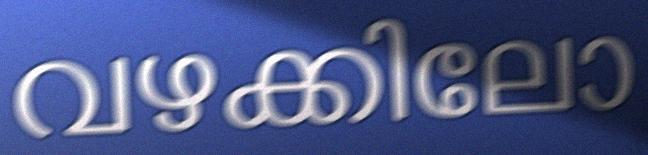
വഴക്കിലോ